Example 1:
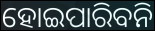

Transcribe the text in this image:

ହୋଇପାରିବନି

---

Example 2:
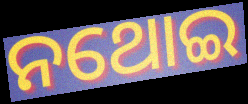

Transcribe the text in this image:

ନଥୋଇ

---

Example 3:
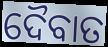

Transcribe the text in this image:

ଦୈବାତ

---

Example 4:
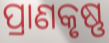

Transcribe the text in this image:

ପ୍ରାଣକୃଷ୍ଣ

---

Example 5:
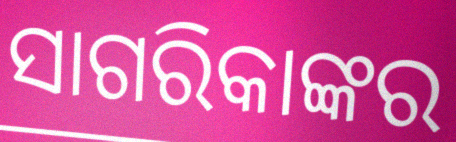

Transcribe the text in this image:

ସାଗରିକାଙ୍କର